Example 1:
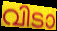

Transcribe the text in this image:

വിടാ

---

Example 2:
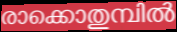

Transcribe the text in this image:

രാക്കൊതുമ്പിൽ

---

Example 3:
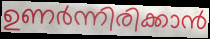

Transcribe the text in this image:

ഉണർന്നിരിക്കാൻ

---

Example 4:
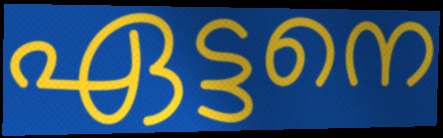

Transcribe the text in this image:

ഏട്ടനെ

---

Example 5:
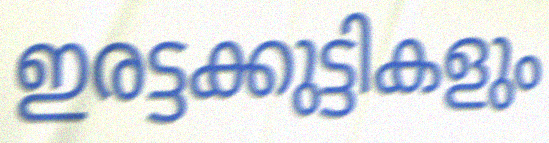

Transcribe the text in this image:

ഇരട്ടക്കുട്ടികളും